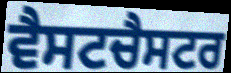
ਵੈਸਟਚੈਸਟਰ